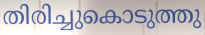
തിരിച്ചുകൊടുത്തു